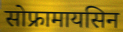
सोफ्रामायसिन